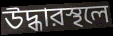
উদ্ধারস্থলে